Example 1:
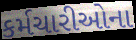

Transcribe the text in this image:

કર્મચારીઓના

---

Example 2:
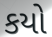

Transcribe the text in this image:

કયો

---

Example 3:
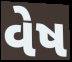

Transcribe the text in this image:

વેષ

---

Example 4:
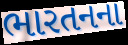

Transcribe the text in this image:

ભારતનના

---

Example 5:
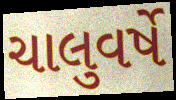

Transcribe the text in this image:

ચાલુવર્ષે